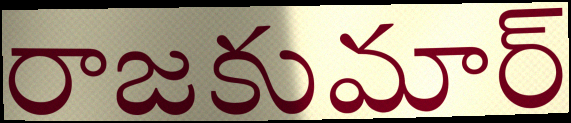
రాజకుమార్